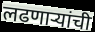
लढणाऱ्यांची